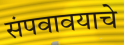
संपवावयाचे